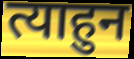
त्याहुन